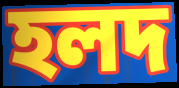
হলদ